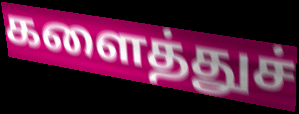
களைத்துச்